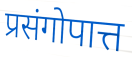
प्रसंगोपात्त